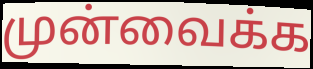
முன்வைக்க